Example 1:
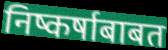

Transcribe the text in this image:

निष्कर्षाबाबत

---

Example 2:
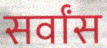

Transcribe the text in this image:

सर्वांस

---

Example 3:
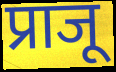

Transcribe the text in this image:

प्राजू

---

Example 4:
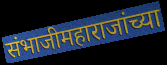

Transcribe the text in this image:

संभाजीमहाराजांच्या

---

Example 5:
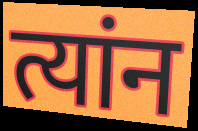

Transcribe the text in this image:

त्यांन